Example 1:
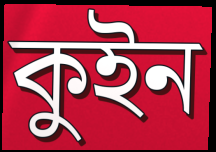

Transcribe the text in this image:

কুইন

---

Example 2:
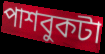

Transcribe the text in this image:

পাশবুকটা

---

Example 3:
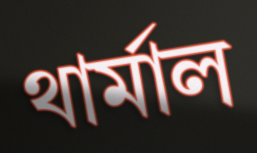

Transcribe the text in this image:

থার্মাল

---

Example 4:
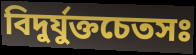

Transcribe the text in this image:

বিদুর্যুক্তচেতসঃ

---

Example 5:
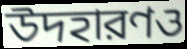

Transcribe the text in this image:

উদহারণও